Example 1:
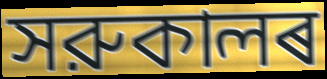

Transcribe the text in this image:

সৰুকালৰ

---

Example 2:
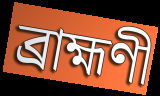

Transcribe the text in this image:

ব্ৰাহ্মণী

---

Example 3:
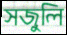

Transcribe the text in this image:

সজুলি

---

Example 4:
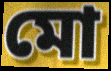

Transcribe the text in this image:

মো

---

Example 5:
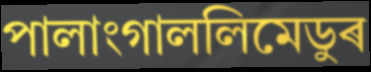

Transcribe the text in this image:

পালাংগাললিমেডুৰ